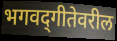
भगवद्‌गीतेवरील